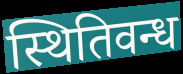
स्थितिवन्ध